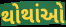
થોથાંઓ